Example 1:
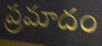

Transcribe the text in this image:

ప్రమాదం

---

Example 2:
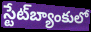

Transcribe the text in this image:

స్టేట్‌బ్యాంకులో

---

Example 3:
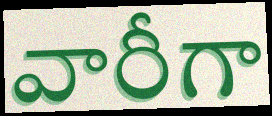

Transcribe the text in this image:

వారీగా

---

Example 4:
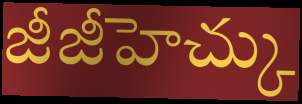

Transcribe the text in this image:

జీజీహెచ్కు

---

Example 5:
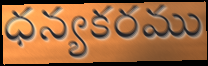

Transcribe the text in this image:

ధన్యకరము